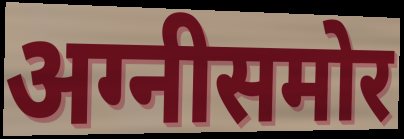
अग्नीसमोर